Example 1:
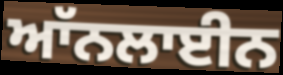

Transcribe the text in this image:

ਆੱਨਲਾਈਨ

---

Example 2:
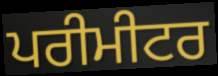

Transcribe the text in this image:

ਪਰੀਮੀਟਰ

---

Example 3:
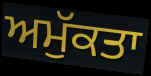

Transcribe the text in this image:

ਅਮੁੱਕਤਾ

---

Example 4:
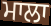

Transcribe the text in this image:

ਮਾਲਾ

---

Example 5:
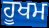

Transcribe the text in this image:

ਹੂਖਮ